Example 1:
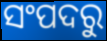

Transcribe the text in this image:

ସଂପଦରୁ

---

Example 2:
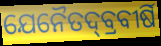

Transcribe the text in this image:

ଯେନୈତଦ୍‌ବ୍ରବୀର୍ଷି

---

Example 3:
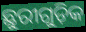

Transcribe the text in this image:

ଛୁରୀଗୁଡ଼ିକ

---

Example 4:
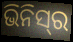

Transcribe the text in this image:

ଭିନିସ୍‌ର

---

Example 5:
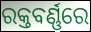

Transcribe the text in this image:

ରକ୍ତବର୍ଣ୍ଣରେ